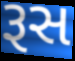
રૂસ